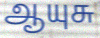
ஆயுசு